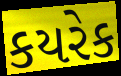
કયરેક